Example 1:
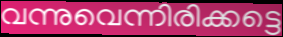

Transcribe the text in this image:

വന്നുവെന്നിരിക്കട്ടെ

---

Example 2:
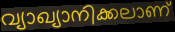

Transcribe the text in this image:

വ്യാഖ്യാനിക്കലാണ്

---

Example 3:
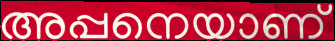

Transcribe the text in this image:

അപ്പനെയാണ്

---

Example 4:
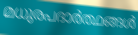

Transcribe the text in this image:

മധുരപദാർത്ഥങ്ങൾ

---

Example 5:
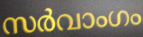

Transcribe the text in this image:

സർവാംഗം